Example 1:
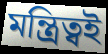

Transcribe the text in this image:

মন্ত্রিত্বই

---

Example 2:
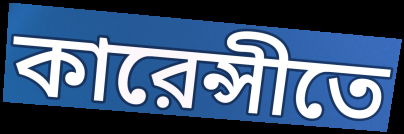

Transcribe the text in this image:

কারেন্সীতে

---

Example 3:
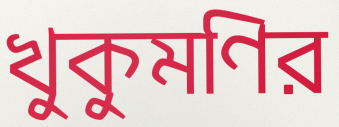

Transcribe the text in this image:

খুকুমণির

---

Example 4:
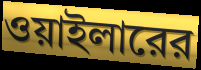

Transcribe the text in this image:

ওয়াইলারের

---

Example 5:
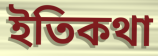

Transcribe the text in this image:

ইতিকথা